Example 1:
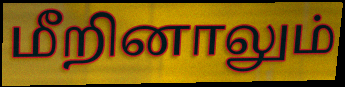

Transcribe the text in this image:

மீறினாலும்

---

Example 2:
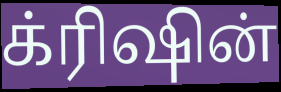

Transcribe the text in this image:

க்ரிஷின்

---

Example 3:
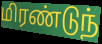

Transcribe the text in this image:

மிரண்டுந்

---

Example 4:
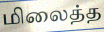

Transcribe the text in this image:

மிலைத்த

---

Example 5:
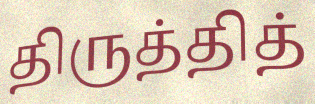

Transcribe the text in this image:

திருத்தித்